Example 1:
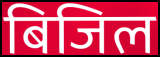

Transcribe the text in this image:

बिजिल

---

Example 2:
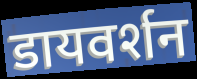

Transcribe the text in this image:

डायवर्शन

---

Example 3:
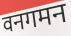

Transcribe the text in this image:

वनगमन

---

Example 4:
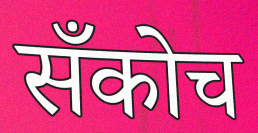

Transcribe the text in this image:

सँकोच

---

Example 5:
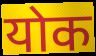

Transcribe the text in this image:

योक